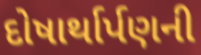
દોષાર્થાર્પણની